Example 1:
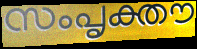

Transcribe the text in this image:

സംപൃക്തൗ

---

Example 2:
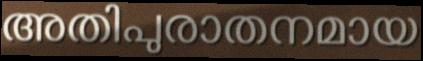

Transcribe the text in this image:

അതിപുരാതനമായ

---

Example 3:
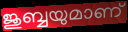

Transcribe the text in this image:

ജുബ്ബയുമാണ്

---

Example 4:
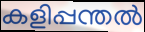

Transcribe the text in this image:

കളിപ്പന്തൽ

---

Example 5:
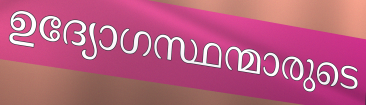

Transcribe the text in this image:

ഉദ്യോഗസ്ഥന്മാരുടെ